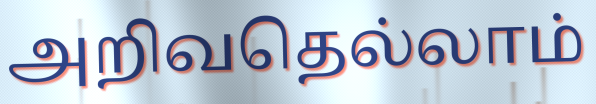
அறிவதெல்லாம்